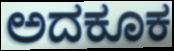
ಅದಕೂಕ